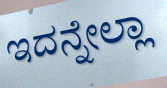
ಇದನ್ನೇಲ್ಲಾ